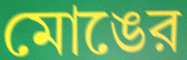
মোঙের